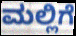
ಮಲ್ಲಿಗೆ